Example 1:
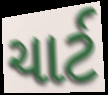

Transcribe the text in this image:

ચાર્ટ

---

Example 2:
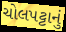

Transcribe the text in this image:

ચોલપટ્ટાનું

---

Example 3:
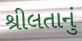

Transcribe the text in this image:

શ્રીલતાનું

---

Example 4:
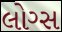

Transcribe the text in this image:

લોગ્સ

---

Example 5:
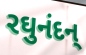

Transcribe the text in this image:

રઘુનંદન્